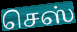
செஸ்